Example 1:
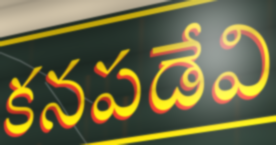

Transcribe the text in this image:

కనపడేవి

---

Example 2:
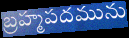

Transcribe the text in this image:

బ్రహ్మపదమును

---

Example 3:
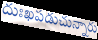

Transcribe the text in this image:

దుఃఖపడుచున్నారు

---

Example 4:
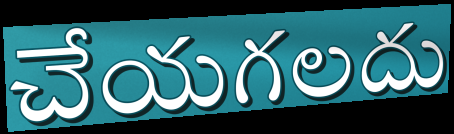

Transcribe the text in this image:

చేయగలదు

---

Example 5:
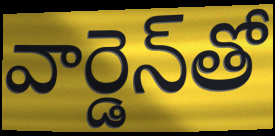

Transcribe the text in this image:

వార్డెన్‌తో